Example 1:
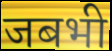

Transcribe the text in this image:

जबभी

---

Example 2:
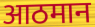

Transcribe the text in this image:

आठमान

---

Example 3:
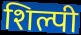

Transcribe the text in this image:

शिल्‍पी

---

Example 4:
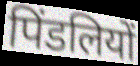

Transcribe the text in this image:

पिंडलियों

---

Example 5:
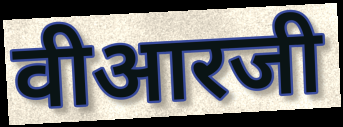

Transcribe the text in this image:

वीआरजी